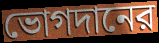
ভোগদানের